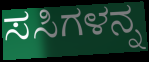
ಸಸಿಗಳನ್ನ